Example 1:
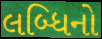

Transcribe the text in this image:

લબ્ધિનો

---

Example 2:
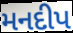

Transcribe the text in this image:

મનદીપ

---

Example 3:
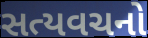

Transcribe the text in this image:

સત્યવચનો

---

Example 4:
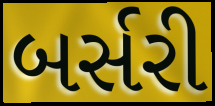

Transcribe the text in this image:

બર્સરી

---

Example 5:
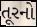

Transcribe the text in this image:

તૂરનો